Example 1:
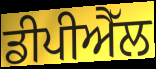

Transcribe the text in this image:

ਡੀਪੀਐੱਲ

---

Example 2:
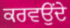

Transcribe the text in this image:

ਕਰਵਉਂਦੇ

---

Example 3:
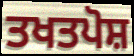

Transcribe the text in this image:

ਤਖਤਪੋਸ਼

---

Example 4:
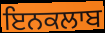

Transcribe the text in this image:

ਇਨਕਲਾਬ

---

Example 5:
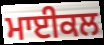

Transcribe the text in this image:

ਮਾਈਕਲ